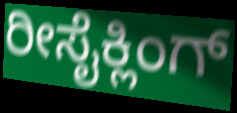
ರೀಸೈಕ್ಲಿಂಗ್